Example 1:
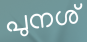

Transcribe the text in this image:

പുനശ്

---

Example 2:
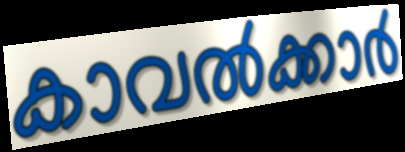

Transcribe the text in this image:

കാവൽക്കാർ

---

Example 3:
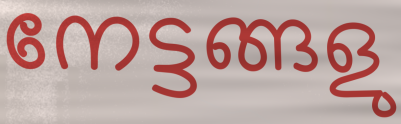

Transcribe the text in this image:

നേട്ടങ്ങളു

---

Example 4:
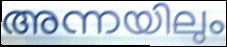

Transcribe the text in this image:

അന്നയിലും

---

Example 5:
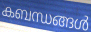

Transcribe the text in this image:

കബന്ധങ്ങൾ